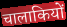
चालाकियों